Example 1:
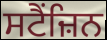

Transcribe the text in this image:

ਸਟੈਂਜ਼ਿਨ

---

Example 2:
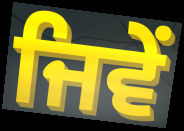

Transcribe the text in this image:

ਜਿਵੇਂ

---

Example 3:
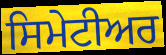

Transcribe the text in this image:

ਸਿਮੇਟੀਅਰ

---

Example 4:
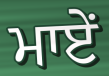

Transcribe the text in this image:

ਮਾਏਂ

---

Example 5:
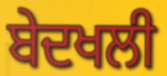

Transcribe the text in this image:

ਬੇਦਖਲੀ